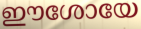
ഈശോയേ